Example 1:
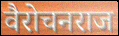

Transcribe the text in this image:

वैरोचनराज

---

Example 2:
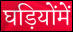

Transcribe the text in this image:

घड़ियोंमें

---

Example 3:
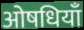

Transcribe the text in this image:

ओषधियाँ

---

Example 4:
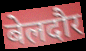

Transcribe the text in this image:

बेलदौर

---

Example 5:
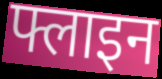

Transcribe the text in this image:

फ्लाइन